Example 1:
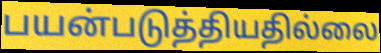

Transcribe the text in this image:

பயன்படுத்தியதில்லை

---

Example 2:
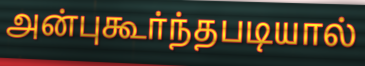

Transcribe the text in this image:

அன்புகூர்ந்தபடியால்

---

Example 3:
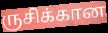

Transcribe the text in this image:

ருசிக்கான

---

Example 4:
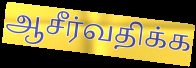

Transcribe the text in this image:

ஆசீர்வதிக்க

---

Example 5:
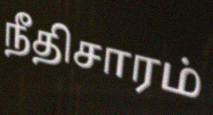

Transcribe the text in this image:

நீதிசாரம்